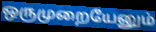
ஒருமுறையேனும்